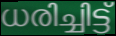
ധരിച്ചിട്ട്